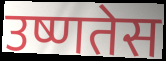
उष्णतेस